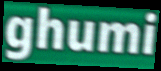
ghumi